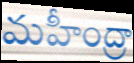
మహీంద్రా